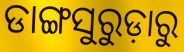
ଡାଙ୍ଗସୁରୁଡ଼ାରୁ